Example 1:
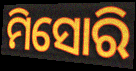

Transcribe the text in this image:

ମିସୋରି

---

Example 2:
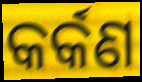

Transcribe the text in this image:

କର୍କଣ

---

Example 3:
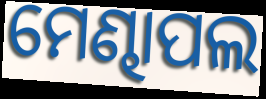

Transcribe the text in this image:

ମେଣ୍ଢାପଲ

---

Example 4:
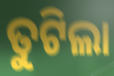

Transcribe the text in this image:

ତୁଟିଲା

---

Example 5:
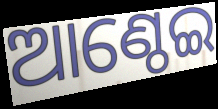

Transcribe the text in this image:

ଆଣ୍ଠେଇ